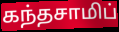
கந்தசாமிப்